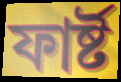
ফাৰ্ষ্ট